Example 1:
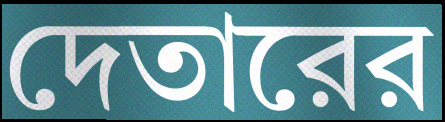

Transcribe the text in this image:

দেতারের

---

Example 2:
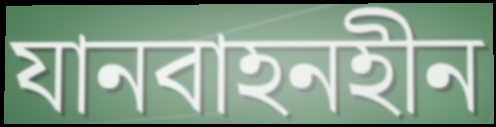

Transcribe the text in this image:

যানবাহনহীন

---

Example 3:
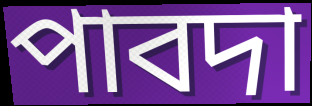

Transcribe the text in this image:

পাবদা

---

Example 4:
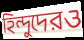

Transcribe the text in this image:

হিন্দুদেরও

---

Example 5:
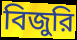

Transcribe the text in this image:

বিজুরি